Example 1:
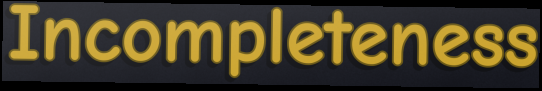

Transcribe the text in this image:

Incompleteness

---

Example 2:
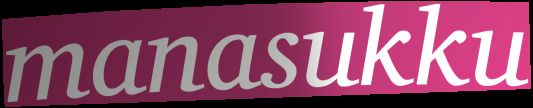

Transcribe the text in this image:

manasukku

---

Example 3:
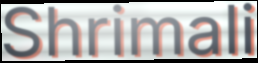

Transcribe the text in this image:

Shrimali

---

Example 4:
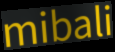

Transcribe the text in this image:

mibali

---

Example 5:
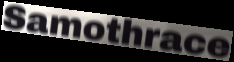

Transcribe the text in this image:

Samothrace